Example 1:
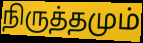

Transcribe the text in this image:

நிருத்தமும்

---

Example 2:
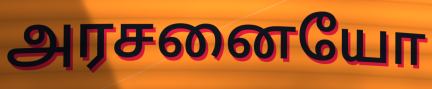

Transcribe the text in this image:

அரசனையோ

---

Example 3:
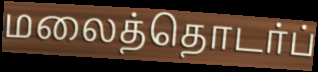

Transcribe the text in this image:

மலைத்தொடர்ப்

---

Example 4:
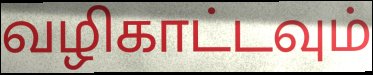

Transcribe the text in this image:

வழிகாட்டவும்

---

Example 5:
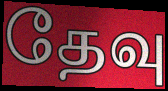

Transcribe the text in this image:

தேவு